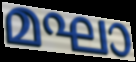
മഘാ